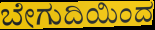
ಬೇಗುದಿಯಿಂದ